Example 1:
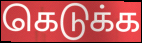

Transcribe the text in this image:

கெடுக்க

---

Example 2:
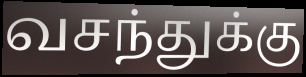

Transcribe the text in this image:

வசந்துக்கு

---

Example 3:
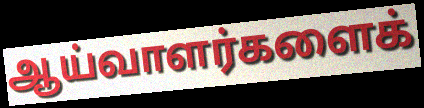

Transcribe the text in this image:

ஆய்வாளர்களைக்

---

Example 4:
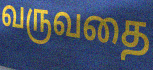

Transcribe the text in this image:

வருவதை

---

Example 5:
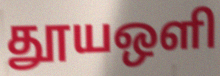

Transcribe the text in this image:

தூயஒளி